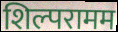
शिल्परामम